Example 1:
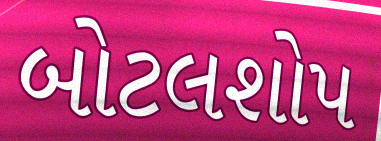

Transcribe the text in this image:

બોટલશોપ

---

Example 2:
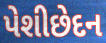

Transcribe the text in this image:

પેશીછેદન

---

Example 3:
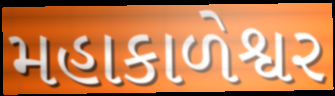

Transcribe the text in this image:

મહાકાળેશ્વર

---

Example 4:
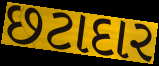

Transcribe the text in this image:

છટાદાર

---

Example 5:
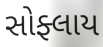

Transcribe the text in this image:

સોફ્લાય